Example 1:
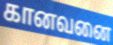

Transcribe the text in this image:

கானவனை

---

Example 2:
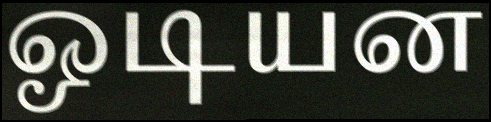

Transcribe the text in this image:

ஓடியன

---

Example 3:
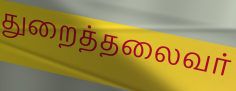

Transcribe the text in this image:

துறைத்தலைவர்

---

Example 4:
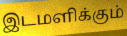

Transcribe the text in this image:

இடமளிக்கும்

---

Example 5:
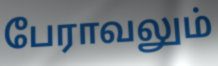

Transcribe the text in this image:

பேராவலும்